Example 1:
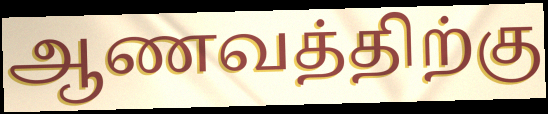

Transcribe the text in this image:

ஆணவத்திற்கு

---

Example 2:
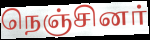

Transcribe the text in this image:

நெஞ்சினர்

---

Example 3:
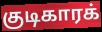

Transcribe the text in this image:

குடிகாரக்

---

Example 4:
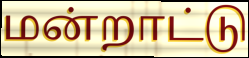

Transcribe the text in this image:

மன்றாட்டு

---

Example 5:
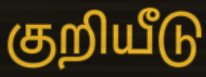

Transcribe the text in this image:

குறியீடு